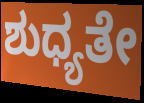
ಶುಧ್ಯತೇ